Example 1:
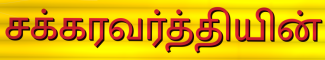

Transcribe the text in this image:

சக்கரவர்த்தியின்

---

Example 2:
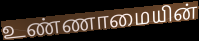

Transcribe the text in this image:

உண்ணாமையின்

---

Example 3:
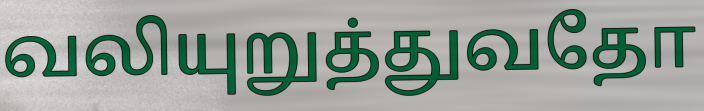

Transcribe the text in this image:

வலியுறுத்துவதோ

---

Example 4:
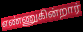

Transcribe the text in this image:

எண்ணுகின்றார்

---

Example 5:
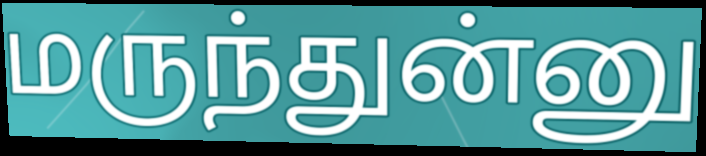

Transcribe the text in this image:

மருந்துன்னு